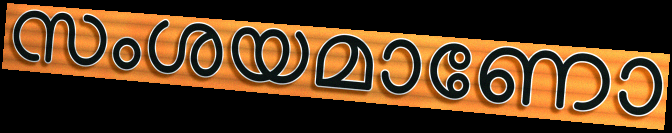
സംശയമാണോ